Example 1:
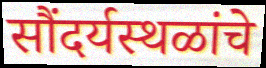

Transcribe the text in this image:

सौंदर्यस्थळांचे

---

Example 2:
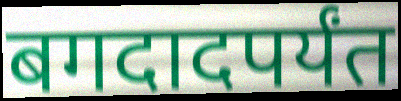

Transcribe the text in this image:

बगदादपर्यंत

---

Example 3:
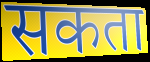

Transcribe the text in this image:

सकता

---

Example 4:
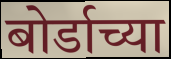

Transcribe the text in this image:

बोर्डाच्या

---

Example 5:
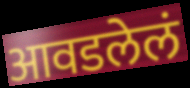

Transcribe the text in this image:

आवडलेलं